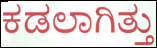
ಕಡಲಾಗಿತ್ತು